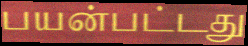
பயன்பட்டது